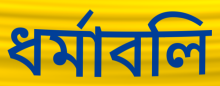
ধর্মাবলি